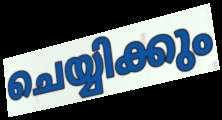
ചെയ്യിക്കും